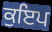
ਕੁਇਪ